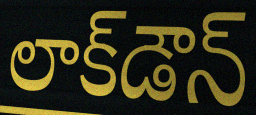
లాక్‌డౌన్